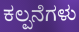
ಕಲ್ಪನೆಗಳು